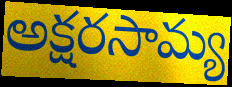
అక్షరసామ్య